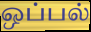
ஒப்பல்